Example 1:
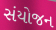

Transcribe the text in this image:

સંયોજન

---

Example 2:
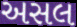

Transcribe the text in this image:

અસલ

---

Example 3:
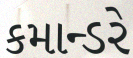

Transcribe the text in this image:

કમાન્ડરે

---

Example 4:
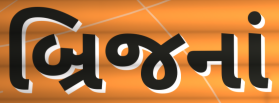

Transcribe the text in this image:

બ્રિજનાં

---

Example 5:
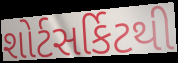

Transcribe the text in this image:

શોર્ટસર્કિટથી